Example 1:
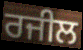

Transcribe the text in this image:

ਰਜੀਲ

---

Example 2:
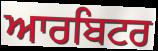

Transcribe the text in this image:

ਆਰਬਿਟਰ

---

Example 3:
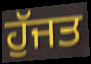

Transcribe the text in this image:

ਹੁੱਜਤ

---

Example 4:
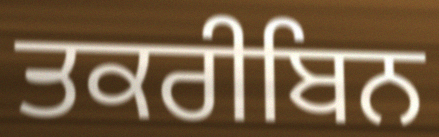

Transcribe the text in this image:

ਤਕਰੀਬਿਨ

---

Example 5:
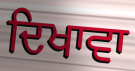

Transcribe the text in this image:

ਦਿਖਾਵਾ